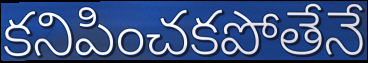
కనిపించకపోతేనే